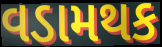
વડામથક